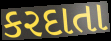
કરદાતા